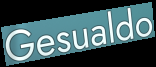
Gesualdo